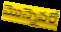
మొన్నెవరో